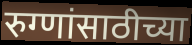
रुग्णांसाठीच्या